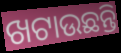
ଖଟାଉଛନ୍ତି